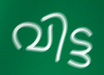
വിട്ട